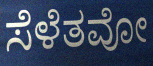
ಸೆಳೆತವೋ